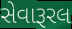
સેવારૂરલ